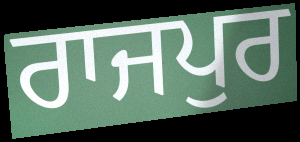
ਰਾਜਪੁਰ